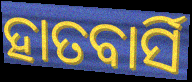
ହାତବାର୍ସି